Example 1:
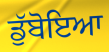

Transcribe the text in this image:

ਡੁੱਬੋਇਆ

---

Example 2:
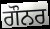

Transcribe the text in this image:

ਗੌਨਰ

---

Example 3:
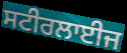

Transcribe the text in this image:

ਸਟੀਰਲਾਈਜ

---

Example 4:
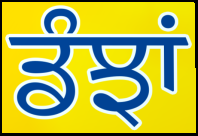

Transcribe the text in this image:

ਡੰਝਾਂ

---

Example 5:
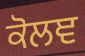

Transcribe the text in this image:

ਕੋਲਞ